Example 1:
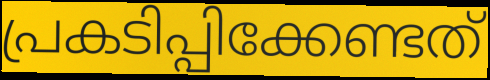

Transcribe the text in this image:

പ്രകടിപ്പിക്കേണ്ടത്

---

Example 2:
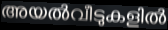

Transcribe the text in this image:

അയൽവീടുകളിൽ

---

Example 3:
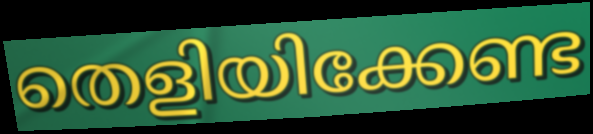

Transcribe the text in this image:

തെളിയിക്കേണ്ട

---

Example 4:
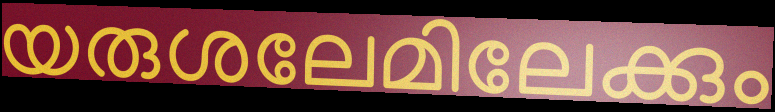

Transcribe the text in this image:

യരുശലേമിലേക്കും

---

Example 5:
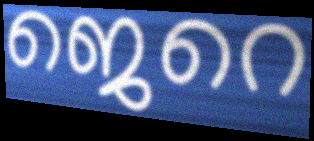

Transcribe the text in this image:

ജെറെ